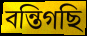
বন্তিগছি